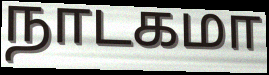
நாடகமா